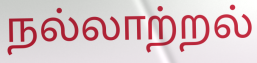
நல்லாற்றல்